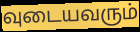
வுடையவரும்